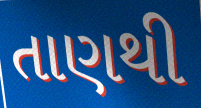
તાણથી